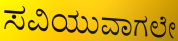
ಸವಿಯುವಾಗಲೇ